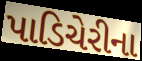
પાડિચેરીના